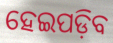
ହେଇପଡ଼ିବ